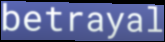
betrayal